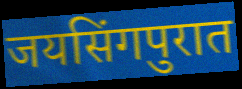
जयसिंगपुरात